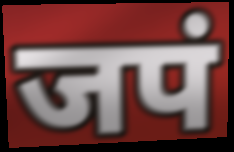
जपं